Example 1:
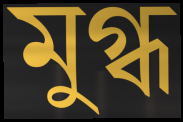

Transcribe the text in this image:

মুগ্ধ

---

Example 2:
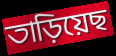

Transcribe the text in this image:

তাড়িয়েছ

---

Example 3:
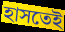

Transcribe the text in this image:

হাসতেই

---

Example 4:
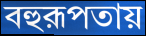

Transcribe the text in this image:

বহুরূপতায়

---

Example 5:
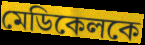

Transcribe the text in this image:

মেডিকেলকে